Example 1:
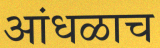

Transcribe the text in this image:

आंधळाच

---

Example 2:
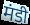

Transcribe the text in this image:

मंडी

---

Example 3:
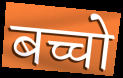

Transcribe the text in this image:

बच्चो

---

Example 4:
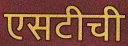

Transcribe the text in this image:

एसटीची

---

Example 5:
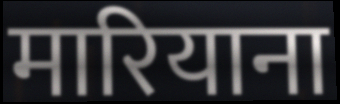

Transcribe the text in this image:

मारियाना